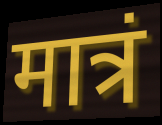
मात्रं